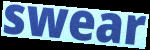
swear